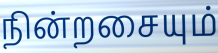
நின்றசையும்